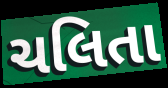
ચલિતા